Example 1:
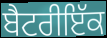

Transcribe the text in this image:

ਬੈਟਰੀਇੱਕ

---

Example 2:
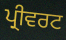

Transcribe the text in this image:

ਪ੍ਰੀਵਰਟ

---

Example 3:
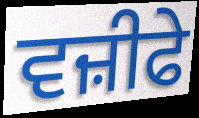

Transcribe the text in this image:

ਵਜ਼ੀਫੇ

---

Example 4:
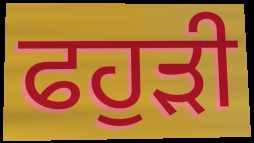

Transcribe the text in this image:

ਫਹੁੜੀ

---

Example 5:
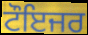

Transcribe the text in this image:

ਟੌਇਜਰ